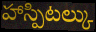
హాస్పిటల్కు